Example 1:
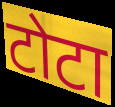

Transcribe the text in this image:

टोटा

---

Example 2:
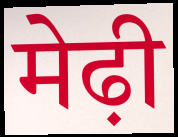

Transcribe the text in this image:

मेढ़ी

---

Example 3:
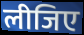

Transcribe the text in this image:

लीजिए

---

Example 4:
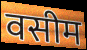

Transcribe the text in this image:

वसीम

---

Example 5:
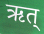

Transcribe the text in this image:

ऋत्